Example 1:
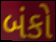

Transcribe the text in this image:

બંકો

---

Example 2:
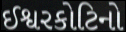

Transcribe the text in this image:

ઈશ્વરકોટિનો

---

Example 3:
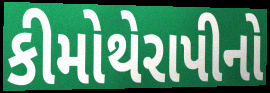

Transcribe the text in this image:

કીમોથેરાપીનો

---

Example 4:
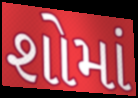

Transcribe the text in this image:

શોમાં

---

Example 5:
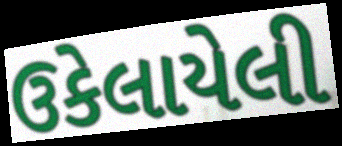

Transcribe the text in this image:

ઉકેલાયેલી